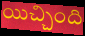
యిచ్చింది